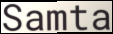
Samta